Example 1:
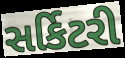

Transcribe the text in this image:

સર્કિટરી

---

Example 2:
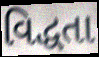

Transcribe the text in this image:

વિદ્ધતા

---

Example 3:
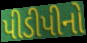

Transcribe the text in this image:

પીડીપીનો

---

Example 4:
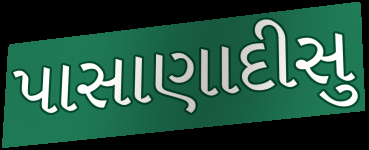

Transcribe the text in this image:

પાસાણાદીસુ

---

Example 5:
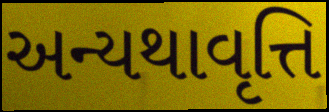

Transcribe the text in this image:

અન્યથાવૃત્તિ